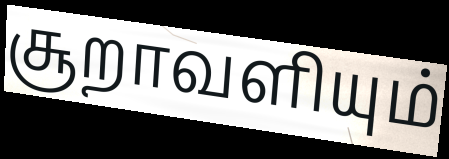
சூறாவளியும்